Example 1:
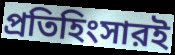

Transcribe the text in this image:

প্রতিহিংসারই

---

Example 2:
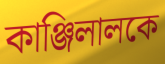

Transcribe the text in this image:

কাঞ্জিলালকে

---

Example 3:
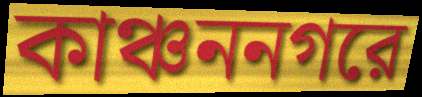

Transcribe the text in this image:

কাঞ্চননগরে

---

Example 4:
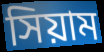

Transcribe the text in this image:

সিয়াম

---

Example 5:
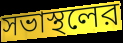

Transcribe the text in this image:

সভাস্থলের